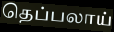
தெப்பலாய்